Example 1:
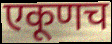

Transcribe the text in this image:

एकूणच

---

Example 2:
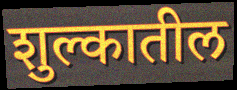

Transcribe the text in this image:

शुल्कातील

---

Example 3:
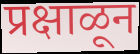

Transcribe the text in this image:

प्रक्षाळून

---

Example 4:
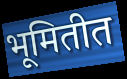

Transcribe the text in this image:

भूमितीत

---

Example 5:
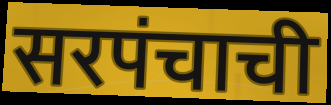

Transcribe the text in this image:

सरपंचाची